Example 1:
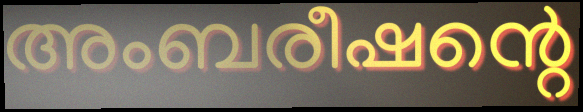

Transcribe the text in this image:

അംബരീഷന്റെ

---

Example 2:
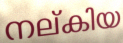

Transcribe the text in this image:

നല്‌കിയ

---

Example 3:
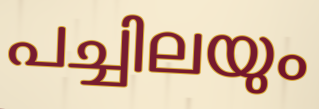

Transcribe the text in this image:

പച്ചിലയും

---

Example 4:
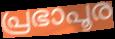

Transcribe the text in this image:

പ്രഭാപൂര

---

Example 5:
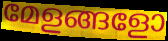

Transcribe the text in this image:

മേളങ്ങളോ